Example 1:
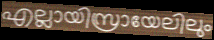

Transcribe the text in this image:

എല്ലായിസ്രായേലിലും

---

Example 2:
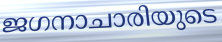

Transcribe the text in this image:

ജഗനാചാരിയുടെ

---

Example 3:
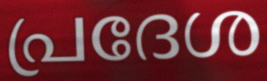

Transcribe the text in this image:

പ്രദേശ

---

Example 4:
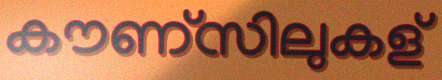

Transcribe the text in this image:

കൗണ്സിലുകള്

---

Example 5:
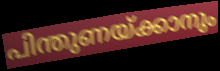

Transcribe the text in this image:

പിന്തുണയ്ക്കാനും